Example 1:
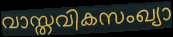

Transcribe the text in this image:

വാസ്തവികസംഖ്യാ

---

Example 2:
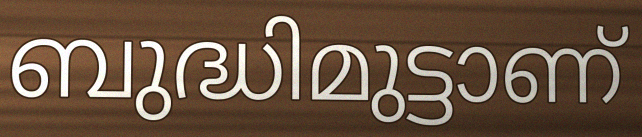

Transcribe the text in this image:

ബുദ്ധിമുട്ടാണ്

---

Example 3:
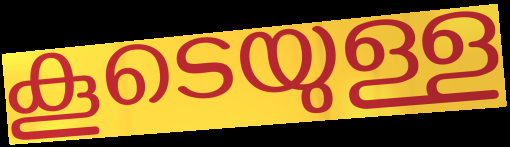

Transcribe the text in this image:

കൂടെയുള്ള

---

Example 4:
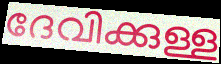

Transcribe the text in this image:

ദേവിക്കുള്ള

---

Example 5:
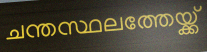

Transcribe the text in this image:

ചന്തസ്ഥലത്തേയ്ക്ക്